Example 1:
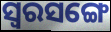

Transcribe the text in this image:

ସ୍ୱରସଙ୍ଗେ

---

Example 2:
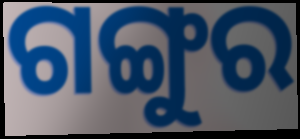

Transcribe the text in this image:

ଗଙ୍ଗୁର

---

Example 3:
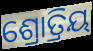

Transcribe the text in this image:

ଶ୍ରୋତ୍ରିୟ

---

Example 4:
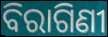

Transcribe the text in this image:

ବିରାଗିଣୀ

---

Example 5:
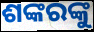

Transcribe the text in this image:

ଶଙ୍କରଙ୍କୁ